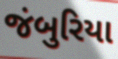
જંબુરિયા